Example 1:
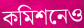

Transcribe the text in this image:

কমিশনেও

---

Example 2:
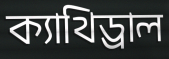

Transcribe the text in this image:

ক্যাথিড্রাল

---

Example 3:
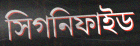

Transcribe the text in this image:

সিগনিফাইড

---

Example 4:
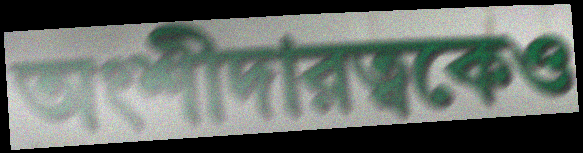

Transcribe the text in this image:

অংশীদারত্বকেও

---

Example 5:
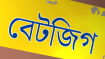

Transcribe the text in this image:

বেটজিগ